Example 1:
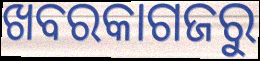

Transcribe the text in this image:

ଖବରକାଗଜରୁ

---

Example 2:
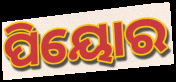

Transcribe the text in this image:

ପିୟୋର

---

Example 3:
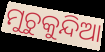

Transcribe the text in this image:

ମୁଚୁକୁନ୍ଦିଆ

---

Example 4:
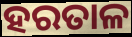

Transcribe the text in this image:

ହରତାଳ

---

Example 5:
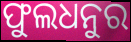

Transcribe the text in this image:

ଫୁଲଧନୁର